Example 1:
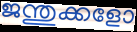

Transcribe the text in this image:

ജന്തുക്കളോ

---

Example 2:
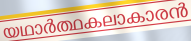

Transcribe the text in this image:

യഥാർത്ഥകലാകാരൻ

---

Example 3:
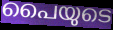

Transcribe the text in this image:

പൈയുടെ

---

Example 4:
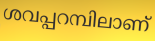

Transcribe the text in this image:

ശവപ്പറമ്പിലാണ്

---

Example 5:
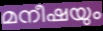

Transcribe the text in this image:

മനീഷയും